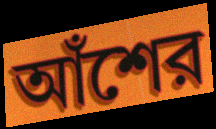
আঁশের